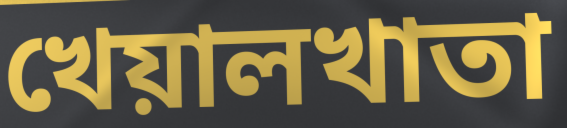
খেয়ালখাতা